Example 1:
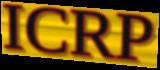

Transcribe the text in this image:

ICRP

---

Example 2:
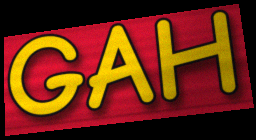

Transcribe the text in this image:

GAH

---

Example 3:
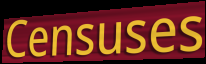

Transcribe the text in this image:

Censuses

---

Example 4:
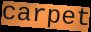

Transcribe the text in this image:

carpet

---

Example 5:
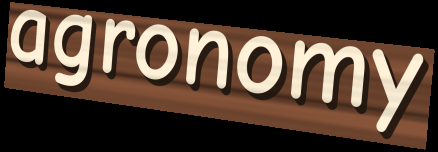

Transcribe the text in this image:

agronomy